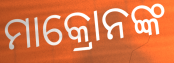
ମାକ୍ରୋନଙ୍କ